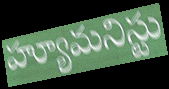
హ్యూమనిస్టు